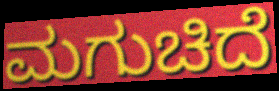
ಮಗುಚಿದೆ